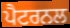
ਪੈਟਰਨਲ